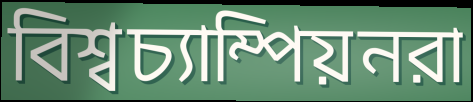
বিশ্বচ্যাম্পিয়নরা